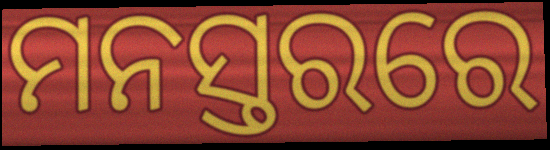
ମନସ୍ତରରେ